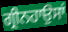
ਗ੍ਰੀਨਹਾਉਸਾਂ